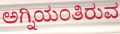
ಅಗ್ನಿಯಂತಿರುವ